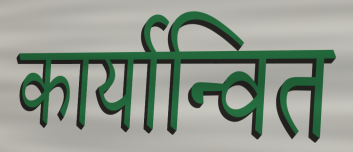
कार्यान्वित